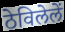
ठेविलेलें